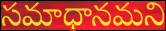
సమాధానమని